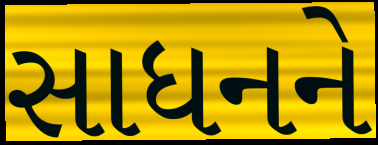
સાધનને